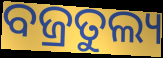
ବଜ୍ରତୁଲ୍ୟ